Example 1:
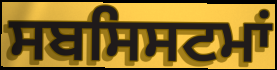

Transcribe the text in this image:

ਸਬਸਿਸਟਮਾਂ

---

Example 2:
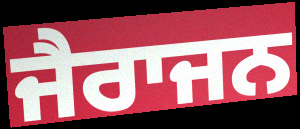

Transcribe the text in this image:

ਜੈਰਾਜਨ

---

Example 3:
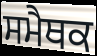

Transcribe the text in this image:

ਸਮੈਥਕ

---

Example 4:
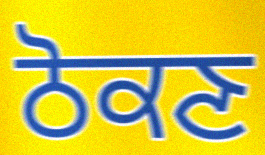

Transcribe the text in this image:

ਠੋਕਣ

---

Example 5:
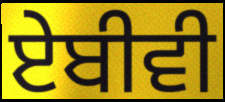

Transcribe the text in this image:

ਏਬੀਵੀ